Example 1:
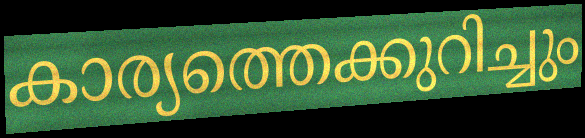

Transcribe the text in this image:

കാര്യത്തെക്കുറിച്ചും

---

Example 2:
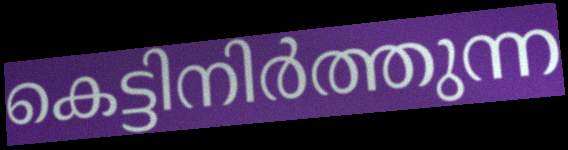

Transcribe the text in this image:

കെട്ടിനിർത്തുന്ന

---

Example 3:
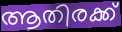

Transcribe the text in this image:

ആതിരക്ക്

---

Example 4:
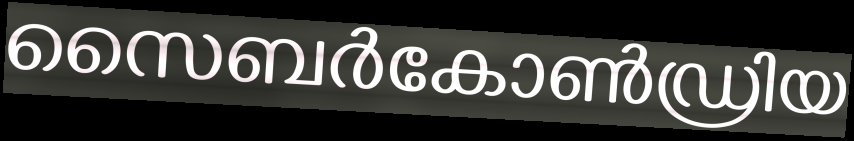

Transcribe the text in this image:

സൈബർകോൺഡ്രിയ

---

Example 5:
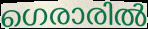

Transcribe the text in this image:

ഗെരാരിൽ